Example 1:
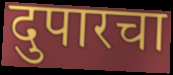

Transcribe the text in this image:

दुपारचा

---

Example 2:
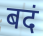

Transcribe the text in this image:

बदं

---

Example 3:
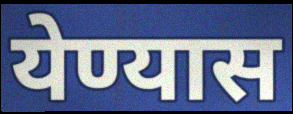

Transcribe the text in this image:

येण्यास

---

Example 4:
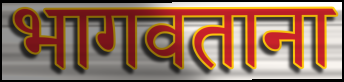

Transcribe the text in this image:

भागवताना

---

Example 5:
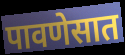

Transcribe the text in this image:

पावणेसात